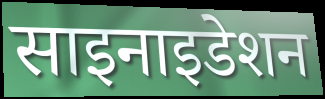
साइनाइडेशन